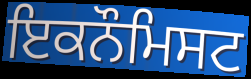
ਇਕਨੌਮਿਸਟ